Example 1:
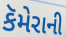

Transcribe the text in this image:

કૅમેરાની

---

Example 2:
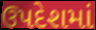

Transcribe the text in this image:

ઉપદેશમાં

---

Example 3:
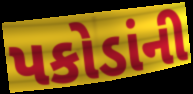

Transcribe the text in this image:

પકોડાંની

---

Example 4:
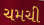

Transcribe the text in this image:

ચમચી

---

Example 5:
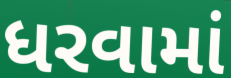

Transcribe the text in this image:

ધરવામાં